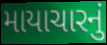
માયાચારનું